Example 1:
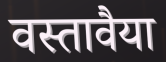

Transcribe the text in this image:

वस्तावैया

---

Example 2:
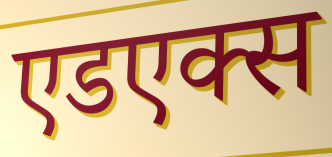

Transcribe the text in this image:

एडएक्स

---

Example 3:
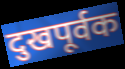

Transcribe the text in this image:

दुखपूर्वक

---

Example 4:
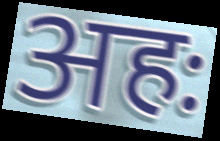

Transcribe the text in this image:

अहः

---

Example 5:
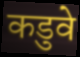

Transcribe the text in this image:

कडुवे